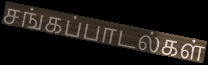
சங்கப்பாடல்கள்